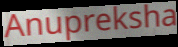
Anupreksha